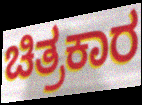
ಚಿತ್ರಕಾರ